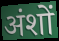
अंशों